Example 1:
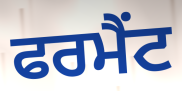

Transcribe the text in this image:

ਫਰਮੈਂਟ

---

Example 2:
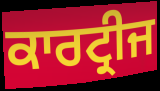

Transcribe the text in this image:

ਕਾਰਟ੍ਰੀਜ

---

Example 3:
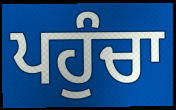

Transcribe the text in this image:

ਪਹੁੰਚਾ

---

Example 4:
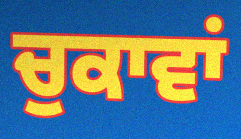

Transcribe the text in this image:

ਚੁਕਾਵਾਂ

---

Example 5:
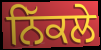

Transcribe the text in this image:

ਨਿੱਕਲੇ